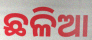
ଛଳିଆ